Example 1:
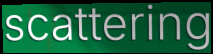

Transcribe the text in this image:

scattering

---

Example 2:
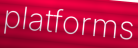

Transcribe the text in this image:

platforms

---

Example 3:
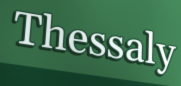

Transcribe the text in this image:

Thessaly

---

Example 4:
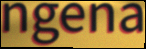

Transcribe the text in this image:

ngena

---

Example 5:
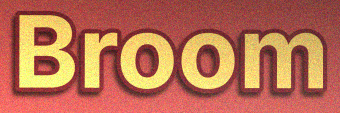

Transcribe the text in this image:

Broom